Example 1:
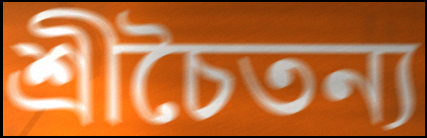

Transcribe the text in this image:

শ্রীচৈতন্য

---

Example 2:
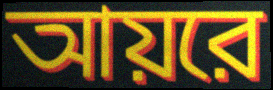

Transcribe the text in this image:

আয়রে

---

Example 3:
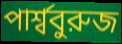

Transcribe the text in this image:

পার্শ্ববুরুজ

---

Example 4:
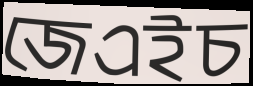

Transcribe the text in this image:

জেএইচ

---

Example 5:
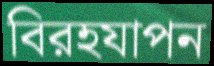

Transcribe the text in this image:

বিরহযাপন